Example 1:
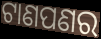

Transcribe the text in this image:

ଟାଣପଣର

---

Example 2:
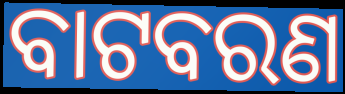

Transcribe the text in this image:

ବାଟବରଣ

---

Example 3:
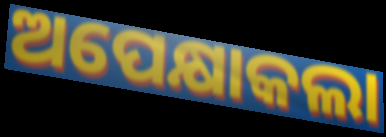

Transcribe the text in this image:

ଅପେକ୍ଷାକଲା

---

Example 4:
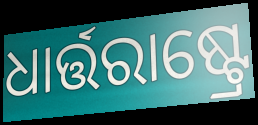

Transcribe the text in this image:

ଧାର୍ତ୍ତରାଷ୍ଟ୍ରେ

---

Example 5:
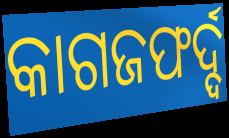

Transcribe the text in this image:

କାଗଜଫର୍ଦ୍ଦ